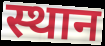
स्थान